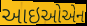
આઇઓએન